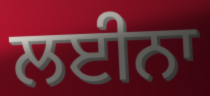
ਲਈਨਾ